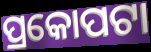
ପ୍ରକୋପଟା